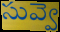
సువ్వె